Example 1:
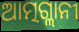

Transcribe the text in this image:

ଆତ୍ମଗ୍ଲାନୀ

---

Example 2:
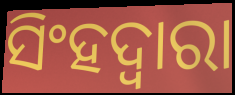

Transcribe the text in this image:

ସିଂହଦ୍ୱାରା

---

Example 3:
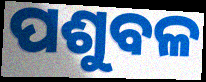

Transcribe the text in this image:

ପଶୁବଳ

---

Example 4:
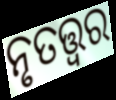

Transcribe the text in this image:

ନୃତତ୍ତ୍ୱର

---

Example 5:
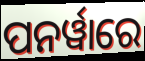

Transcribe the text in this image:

ପନର୍ୱାରେ